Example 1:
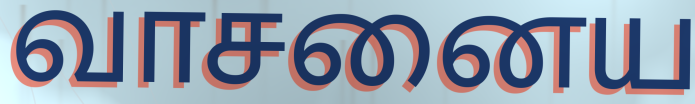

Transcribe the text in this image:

வாசனைய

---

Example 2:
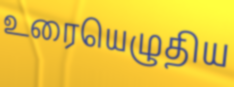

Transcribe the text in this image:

உரையெழுதிய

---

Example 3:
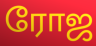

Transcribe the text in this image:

ரோஜ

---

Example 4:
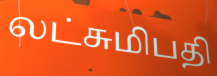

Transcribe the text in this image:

லட்சுமிபதி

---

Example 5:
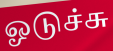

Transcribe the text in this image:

ஓடுச்சு